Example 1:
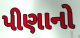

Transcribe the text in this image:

પીણાનો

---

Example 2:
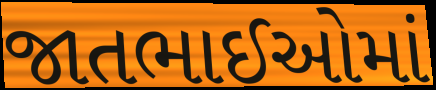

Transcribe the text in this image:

જાતભાઈઓમાં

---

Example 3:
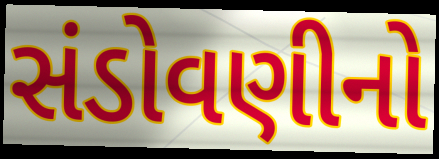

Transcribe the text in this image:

સંડોવણીનો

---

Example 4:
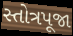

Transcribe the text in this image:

સ્તોત્રપૂજા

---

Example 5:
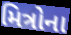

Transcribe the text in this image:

મિત્રોના